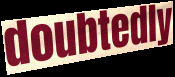
doubtedly